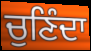
ਚੁਣਿੰਦਾ